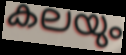
കലയും